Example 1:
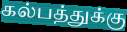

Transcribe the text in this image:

கல்பத்துக்கு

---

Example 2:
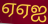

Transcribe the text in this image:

ஏஏஐ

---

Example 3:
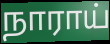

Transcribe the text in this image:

நாராய்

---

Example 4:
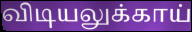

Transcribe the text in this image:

விடியலுக்காய்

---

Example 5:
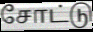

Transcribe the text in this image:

சோட்டு